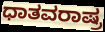
ಧಾತವರಾಷ್ರ